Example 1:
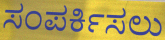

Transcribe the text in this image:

ಸಂಪರ್ಕಿಸಲು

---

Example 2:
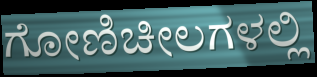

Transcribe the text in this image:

ಗೋಣಿಚೀಲಗಳಲ್ಲಿ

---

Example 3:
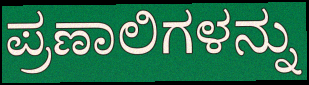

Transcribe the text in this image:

ಪ್ರಣಾಲಿಗಳನ್ನು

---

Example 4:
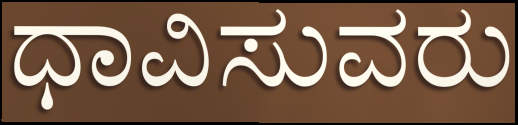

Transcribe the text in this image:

ಧಾವಿಸುವರು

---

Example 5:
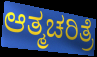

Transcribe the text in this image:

ಆತ್ಮಚರಿತ್ರೆ